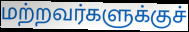
மற்றவர்களுக்குச்